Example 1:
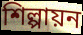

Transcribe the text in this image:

শিল্পায়ন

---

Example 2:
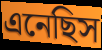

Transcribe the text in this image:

এনেছিস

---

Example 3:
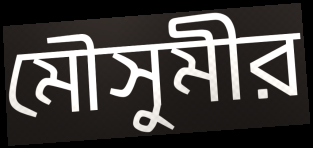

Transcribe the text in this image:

মৌসুমীর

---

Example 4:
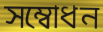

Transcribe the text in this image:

সম্বোধন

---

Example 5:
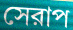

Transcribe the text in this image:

সেরাপ